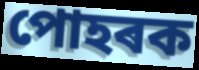
পোহৰক